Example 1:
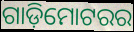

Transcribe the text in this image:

ଗାଡ଼ିମୋଟରର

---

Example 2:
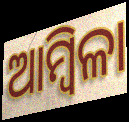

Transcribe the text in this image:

ଆମ୍ବିଳା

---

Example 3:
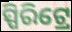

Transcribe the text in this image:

ସ୍ପିରିଟ୍ରେ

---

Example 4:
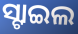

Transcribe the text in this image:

ସ୍ଟାଇଲ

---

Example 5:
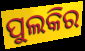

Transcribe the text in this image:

ପୁଲକିର